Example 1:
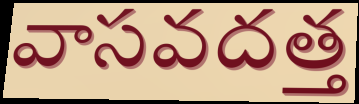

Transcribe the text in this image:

వాసవదత్త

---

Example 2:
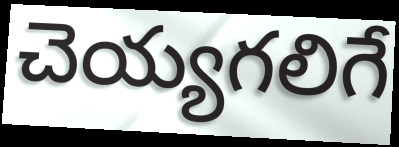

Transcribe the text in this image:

చెయ్యగలిగే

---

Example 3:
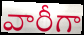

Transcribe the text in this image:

వారీగా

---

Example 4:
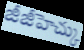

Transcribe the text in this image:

జీజీహెచ్కు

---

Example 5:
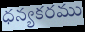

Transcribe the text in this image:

ధన్యకరము